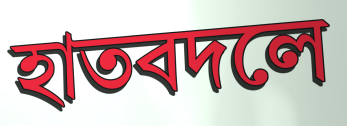
হাতবদলে